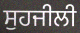
ਸੁਹਜੀਲੀ